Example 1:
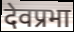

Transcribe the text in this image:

देवप्रभा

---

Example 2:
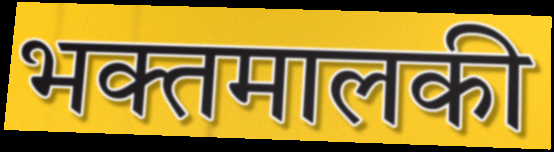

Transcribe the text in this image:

भक्तमालकी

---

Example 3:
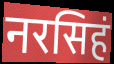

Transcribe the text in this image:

नरसिहं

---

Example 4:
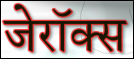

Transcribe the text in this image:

जेरॉक्स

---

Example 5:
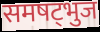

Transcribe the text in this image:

समषट्भुज